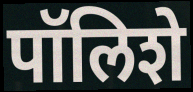
पॉलिशे